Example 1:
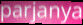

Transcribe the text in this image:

parjanya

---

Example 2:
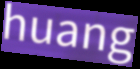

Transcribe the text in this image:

huang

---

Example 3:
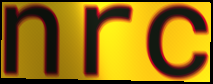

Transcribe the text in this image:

nrc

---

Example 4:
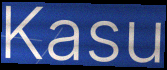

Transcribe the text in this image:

Kasu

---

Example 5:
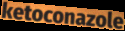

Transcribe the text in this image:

ketoconazole